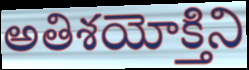
అతిశయోక్తిని